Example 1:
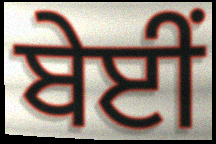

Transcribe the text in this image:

ਬੇਈਂ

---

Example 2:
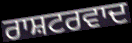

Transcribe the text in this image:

ਰਾਸ਼ਟਰਵਾਦ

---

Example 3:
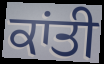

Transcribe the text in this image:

ਕਾਂਤੀ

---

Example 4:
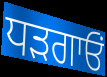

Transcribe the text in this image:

ਧੜਗਾਓਂ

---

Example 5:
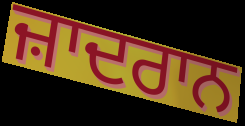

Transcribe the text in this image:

ਜ਼ਾਦਰਾਨ